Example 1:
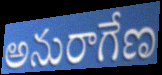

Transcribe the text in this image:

అనురాగేణ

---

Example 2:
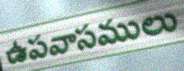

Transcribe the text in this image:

ఉపవాసములు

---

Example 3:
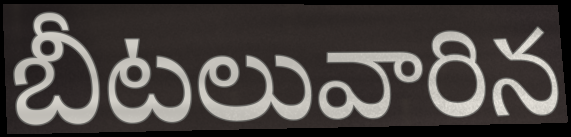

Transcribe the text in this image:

బీటలువారిన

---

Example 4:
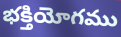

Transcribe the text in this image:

భక్తియోగము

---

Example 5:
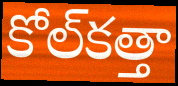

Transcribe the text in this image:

కోల్‌కత్తా